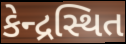
કેન્દ્રસ્થિત